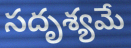
సదృశ్యమే